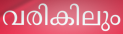
വരികിലും